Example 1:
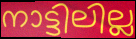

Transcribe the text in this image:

നാട്ടിലില്ല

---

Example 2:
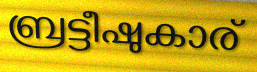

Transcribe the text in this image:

ബ്രട്ടീഷുകാര്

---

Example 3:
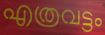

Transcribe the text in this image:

എത്രവട്ടം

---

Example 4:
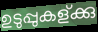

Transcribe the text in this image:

ഉടുപ്പുകള്ക്കു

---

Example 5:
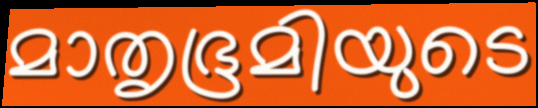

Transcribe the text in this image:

മാതൃഭൂമിയുടെ